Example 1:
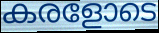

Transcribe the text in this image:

കരളോടെ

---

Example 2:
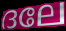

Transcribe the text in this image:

ദലേ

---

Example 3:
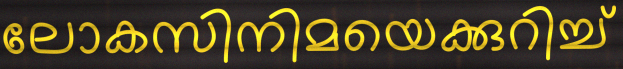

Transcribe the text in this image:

ലോകസിനിമയെക്കുറിച്ച്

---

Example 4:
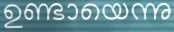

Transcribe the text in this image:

ഉണ്ടായെന്നു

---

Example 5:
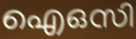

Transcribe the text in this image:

ഐഒസി